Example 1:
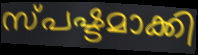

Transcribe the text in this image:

സ്പഷ്ടമാക്കി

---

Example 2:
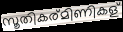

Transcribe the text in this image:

സൂതികര്മിണികള്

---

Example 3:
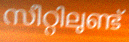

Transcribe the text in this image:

സീറ്റിലുണ്ട്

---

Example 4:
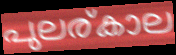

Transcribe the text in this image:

പുലര്കാല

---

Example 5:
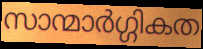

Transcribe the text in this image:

സാന്മാർഗ്ഗികത